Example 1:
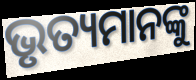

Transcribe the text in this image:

ଭୃତ୍ୟମାନଙ୍କୁ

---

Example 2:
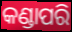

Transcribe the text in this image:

କଣ୍ଡାପରି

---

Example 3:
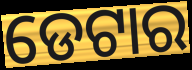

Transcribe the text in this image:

ଡେଟାର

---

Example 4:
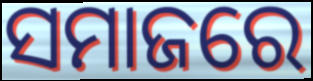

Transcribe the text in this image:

ସମାଜରେ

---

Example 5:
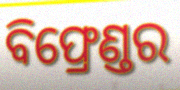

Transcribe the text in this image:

ବିଫ୍ରେଣ୍ଡର